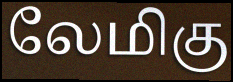
லேமிகு